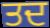
ਤਦ